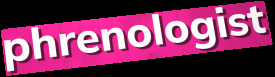
phrenologist